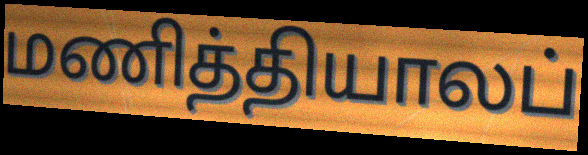
மணித்தியாலப்